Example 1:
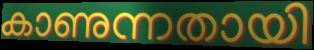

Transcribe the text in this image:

കാണുന്നതായി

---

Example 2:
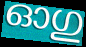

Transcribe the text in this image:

ഓഗു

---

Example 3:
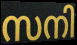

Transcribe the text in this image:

സനി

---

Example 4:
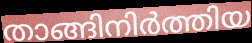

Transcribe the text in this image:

താങ്ങിനിർത്തിയ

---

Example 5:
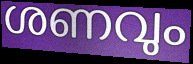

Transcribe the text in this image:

ശണവും